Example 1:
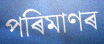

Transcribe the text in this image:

পৰিমাণৰ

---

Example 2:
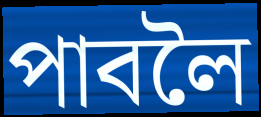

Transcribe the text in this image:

পাবলৈ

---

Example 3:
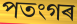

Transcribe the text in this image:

পতংগৰ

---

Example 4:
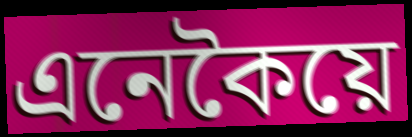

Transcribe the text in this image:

এনেকৈয়ে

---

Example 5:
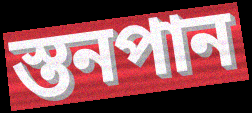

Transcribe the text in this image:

স্তনপান